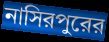
নাসিরপুরের